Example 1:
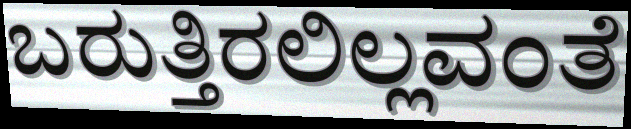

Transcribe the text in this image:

ಬರುತ್ತಿರಲಿಲ್ಲವಂತೆ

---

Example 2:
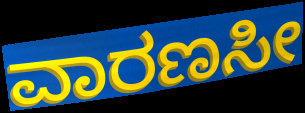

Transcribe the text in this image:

ವಾರಣಸೀ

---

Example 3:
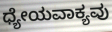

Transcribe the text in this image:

ಧ್ಯೇಯವಾಕ್ಯವು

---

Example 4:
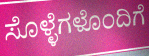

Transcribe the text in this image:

ಸೊಳ್ಳೆಗಳೊಂದಿಗೆ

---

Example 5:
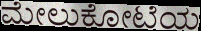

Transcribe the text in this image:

ಮೇಲುಕೋಟೆಯ